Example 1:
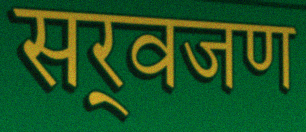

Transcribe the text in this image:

सर्वजण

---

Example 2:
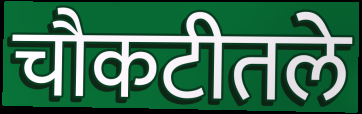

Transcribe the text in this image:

चौकटीतले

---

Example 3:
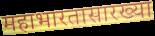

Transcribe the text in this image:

महाभारतासारख्या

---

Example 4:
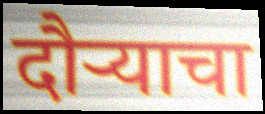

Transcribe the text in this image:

दौऱ्याचा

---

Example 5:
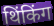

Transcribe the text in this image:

थिंकिंग